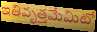
ఇతివృత్తమేమిటో